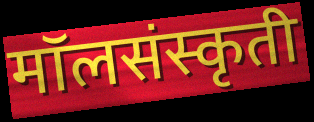
मॉलसंस्कृती